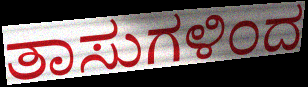
ತಾಸುಗಳಿಂದ